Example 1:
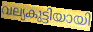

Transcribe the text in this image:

വല്യകുട്ടിയായി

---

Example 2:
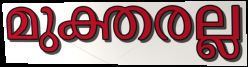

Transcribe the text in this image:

മുക്തരല്ല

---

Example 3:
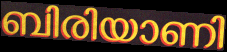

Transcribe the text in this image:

ബിരിയാണി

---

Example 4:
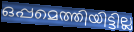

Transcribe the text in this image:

ഒപ്പമെത്തിയിട്ടില്ല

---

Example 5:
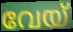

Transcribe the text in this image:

വേയ്